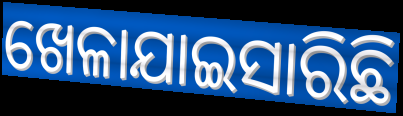
ଖେଳାଯାଇସାରିଛି